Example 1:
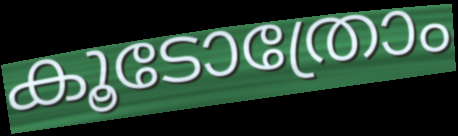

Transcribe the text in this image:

കൂടോത്രോം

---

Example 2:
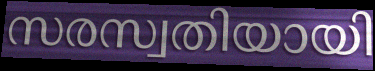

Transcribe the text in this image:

സരസ്വതിയായി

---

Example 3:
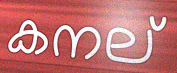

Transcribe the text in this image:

കനല്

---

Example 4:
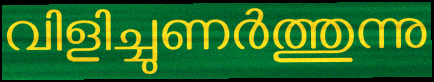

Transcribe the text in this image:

വിളിച്ചുണർത്തുന്നു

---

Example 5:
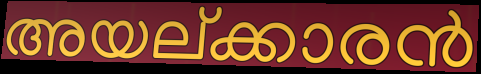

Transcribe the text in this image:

അയല്ക്കാരൻ